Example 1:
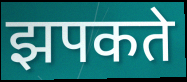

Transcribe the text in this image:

झपकते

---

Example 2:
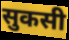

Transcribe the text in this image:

सुकसी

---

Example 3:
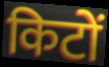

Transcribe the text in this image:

किटों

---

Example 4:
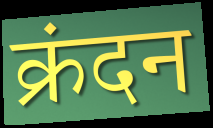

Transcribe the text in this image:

क्रंदन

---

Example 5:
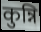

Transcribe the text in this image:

कुन्नि